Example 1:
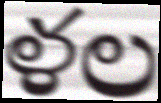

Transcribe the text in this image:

ళల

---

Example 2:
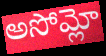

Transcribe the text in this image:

అసోమ్లో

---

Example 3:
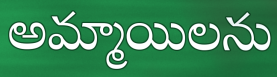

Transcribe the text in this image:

అమ్మాయిలను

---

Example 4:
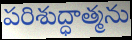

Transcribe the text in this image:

పరిశుద్ధాత్మను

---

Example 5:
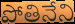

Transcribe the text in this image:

పోతినేని